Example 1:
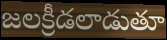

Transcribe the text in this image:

జలక్రీడలాడుతూ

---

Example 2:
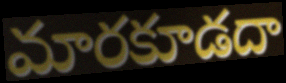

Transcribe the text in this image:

మారకూడదా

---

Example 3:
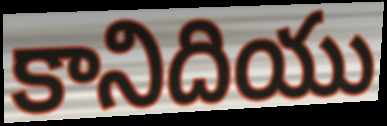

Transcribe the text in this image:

కానిదియు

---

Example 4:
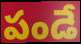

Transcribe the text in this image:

పండే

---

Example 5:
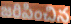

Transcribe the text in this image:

జరిపించిన